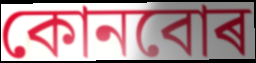
কোনবোৰ